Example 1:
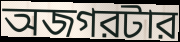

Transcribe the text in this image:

অজগরটার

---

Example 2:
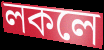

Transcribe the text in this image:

লকলে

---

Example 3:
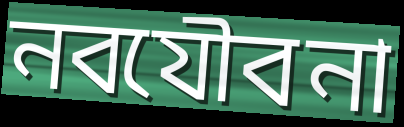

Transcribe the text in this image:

নবযৌবনা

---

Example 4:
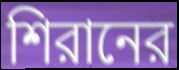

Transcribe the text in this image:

শিরানের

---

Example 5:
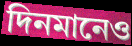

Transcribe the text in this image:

দিনমানেও